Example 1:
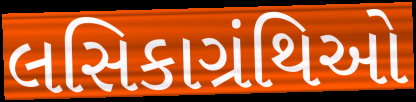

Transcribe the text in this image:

લસિકાગ્રંથિઓ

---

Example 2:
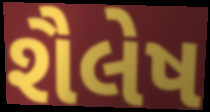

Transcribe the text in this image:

શૈલેષ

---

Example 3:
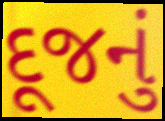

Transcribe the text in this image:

દૂજનું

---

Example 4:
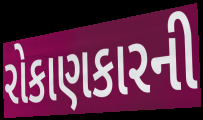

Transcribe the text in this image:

રોકાણકારની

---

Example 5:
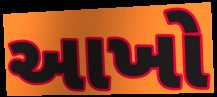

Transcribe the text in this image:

આખો